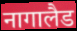
नागालैड